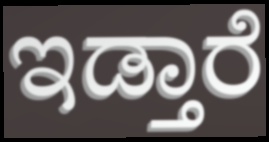
ಇಡ್ತಾರೆ